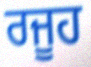
ਰਜੂਹ